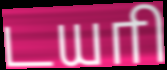
டயரி